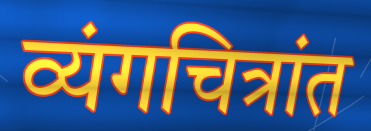
व्यंगचित्रांत